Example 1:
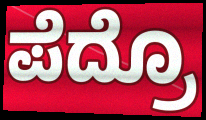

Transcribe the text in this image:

ಪೆದ್ರೊ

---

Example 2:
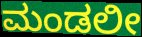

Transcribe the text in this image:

ಮಂಡಲೀ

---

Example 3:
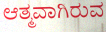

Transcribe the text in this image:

ಆತ್ಮವಾಗಿರುವ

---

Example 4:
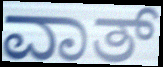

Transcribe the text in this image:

ವಾತ್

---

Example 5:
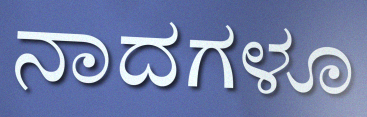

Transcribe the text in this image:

ನಾದಗಳೂ